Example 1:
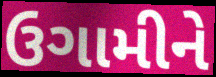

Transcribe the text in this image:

ઉગામીને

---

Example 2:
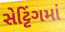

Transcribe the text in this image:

સેટ્ટિંગમાં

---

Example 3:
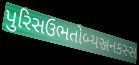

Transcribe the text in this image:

પુરિસઉભતોબ્યઞ્જનકસ્સ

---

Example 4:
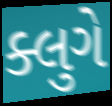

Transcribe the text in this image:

ક્લુગે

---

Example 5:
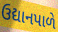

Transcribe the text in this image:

ઉદ્યાનપાળે